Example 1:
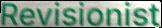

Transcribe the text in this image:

Revisionist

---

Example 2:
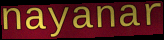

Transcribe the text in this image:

nayanar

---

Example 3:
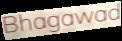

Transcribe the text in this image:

Bhagawad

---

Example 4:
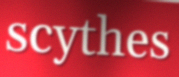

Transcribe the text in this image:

scythes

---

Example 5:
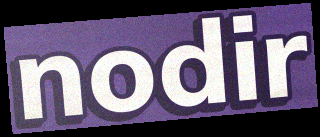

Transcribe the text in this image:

nodir